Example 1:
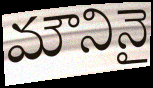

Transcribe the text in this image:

మౌనినై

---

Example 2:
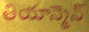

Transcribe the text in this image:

తియాన్మెన్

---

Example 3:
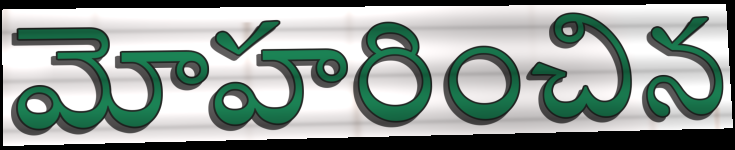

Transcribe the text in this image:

మోహరించిన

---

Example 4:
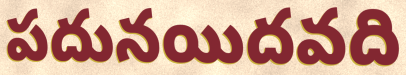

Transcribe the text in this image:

పదునయిదవది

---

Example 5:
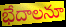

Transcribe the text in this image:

భేదాలనూ